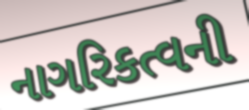
નાગરિકત્વની